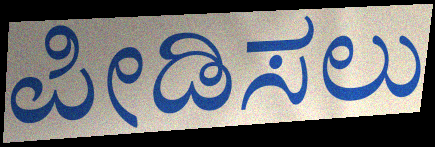
ಪೀಡಿಸಲು